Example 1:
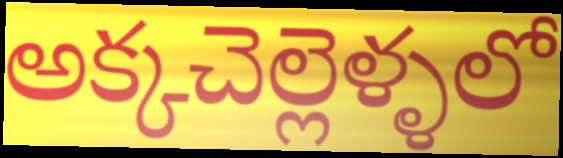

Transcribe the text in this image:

అక్కచెల్లెళ్ళలో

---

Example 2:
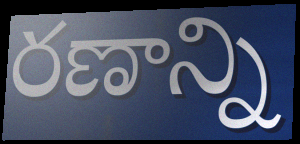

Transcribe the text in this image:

రణాన్ని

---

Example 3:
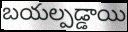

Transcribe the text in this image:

బయల్పడ్డాయి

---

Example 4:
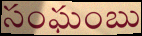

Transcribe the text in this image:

సంఘంబు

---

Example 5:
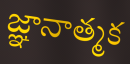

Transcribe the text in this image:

జ్ఞానాత్మక